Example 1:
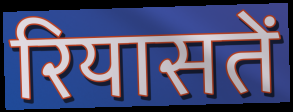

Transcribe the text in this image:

रियासतें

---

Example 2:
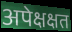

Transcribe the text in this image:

अपेक्षक्षत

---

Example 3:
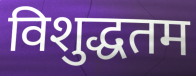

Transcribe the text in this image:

विशुद्धतम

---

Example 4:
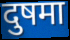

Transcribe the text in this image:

दुषमा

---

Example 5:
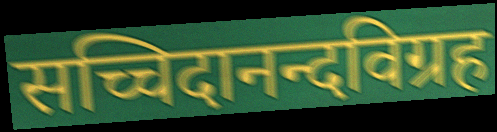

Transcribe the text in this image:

सच्चिदानन्दविग्रह